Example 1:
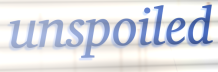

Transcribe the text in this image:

unspoiled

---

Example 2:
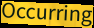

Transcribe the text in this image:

Occurring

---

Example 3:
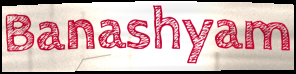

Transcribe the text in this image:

Banashyam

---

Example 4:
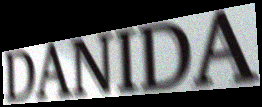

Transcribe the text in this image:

DANIDA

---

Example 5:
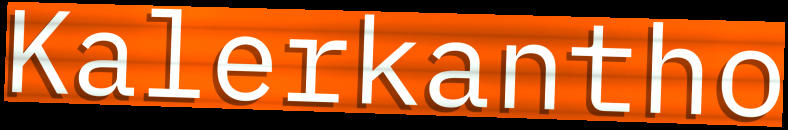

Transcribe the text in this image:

Kalerkantho